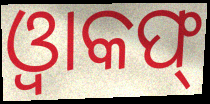
ଓ୍ଵାକଫ୍